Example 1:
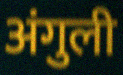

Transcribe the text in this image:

अंगुली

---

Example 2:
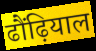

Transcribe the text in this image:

ढौंढ़ियाल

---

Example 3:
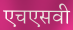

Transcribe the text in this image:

एचएसवी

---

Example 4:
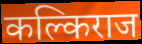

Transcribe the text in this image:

कल्किराज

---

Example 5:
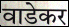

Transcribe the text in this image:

वाडेकर